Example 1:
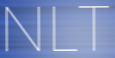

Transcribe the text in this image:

NLT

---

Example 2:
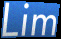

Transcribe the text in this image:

Lim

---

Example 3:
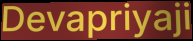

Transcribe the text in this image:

Devapriyaji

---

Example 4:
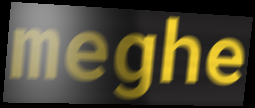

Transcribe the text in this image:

meghe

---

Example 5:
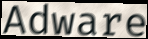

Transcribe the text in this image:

Adware